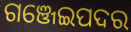
ଗଞ୍ଜେଇପଦର